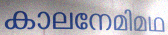
കാലനേമിമഥ